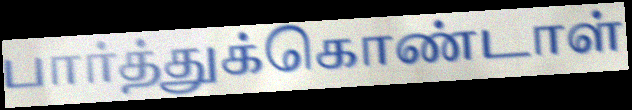
பார்த்துக்கொண்டாள்